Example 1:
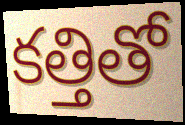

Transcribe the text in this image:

కత్తితో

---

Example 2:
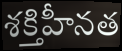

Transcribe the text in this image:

శక్తిహీనత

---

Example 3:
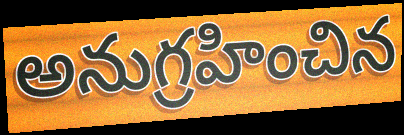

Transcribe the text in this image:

అనుగ్రహించిన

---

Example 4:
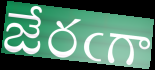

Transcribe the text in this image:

జేరఁగా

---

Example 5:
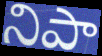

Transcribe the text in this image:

నిపా